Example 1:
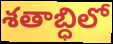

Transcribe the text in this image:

శతాబ్ధిలో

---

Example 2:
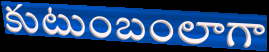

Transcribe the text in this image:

కుటుంబంలాగా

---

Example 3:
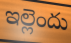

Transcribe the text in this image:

ఇల్లెందు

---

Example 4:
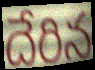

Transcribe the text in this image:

దేరిన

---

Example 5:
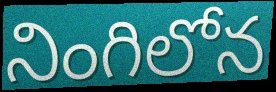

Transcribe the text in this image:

నింగిలోన